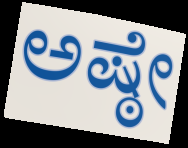
ಅಷ್ಠೇ